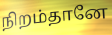
நிறம்தானே